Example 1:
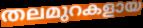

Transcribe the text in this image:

തലമുറകളായ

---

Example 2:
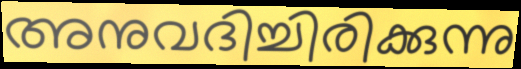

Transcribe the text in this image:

അനുവദിച്ചിരിക്കുന്നു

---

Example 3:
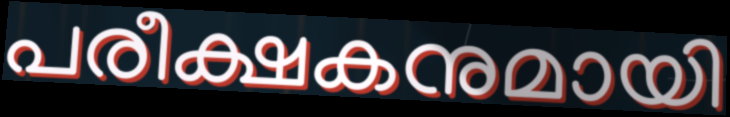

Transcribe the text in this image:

പരീക്ഷകനുമായി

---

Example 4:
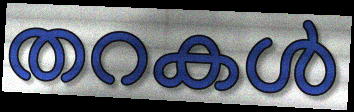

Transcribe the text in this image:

തറകൾ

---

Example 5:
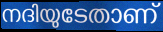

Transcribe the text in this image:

നദിയുടേതാണ്